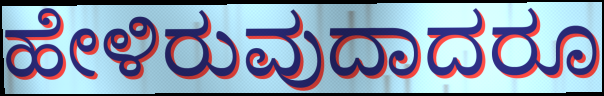
ಹೇಳಿರುವುದಾದರೂ